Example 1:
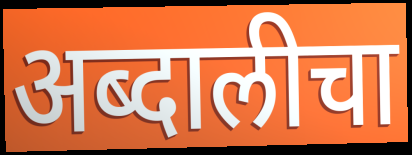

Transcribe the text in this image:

अब्दालीचा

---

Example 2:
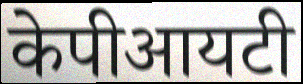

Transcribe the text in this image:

केपीआयटी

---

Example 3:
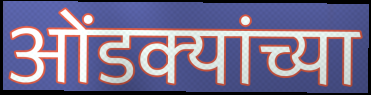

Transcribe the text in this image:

ओंडक्यांच्या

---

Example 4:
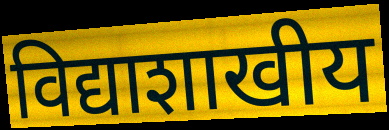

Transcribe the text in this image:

विद्याशाखीय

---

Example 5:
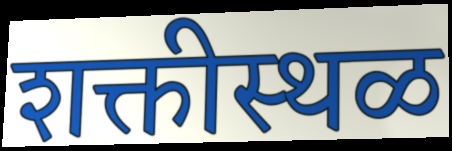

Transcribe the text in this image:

शक्तीस्थळ